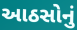
આઠસોનું